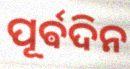
ପୂର୍ଵଦିନ